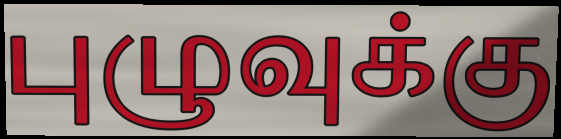
புழுவுக்கு